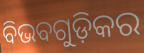
ବିଭବଗୁଡ଼ିକର